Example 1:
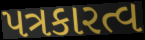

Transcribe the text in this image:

પત્રકારત્વ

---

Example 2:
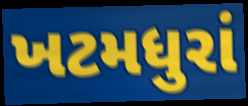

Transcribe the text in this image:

ખટમધુરાં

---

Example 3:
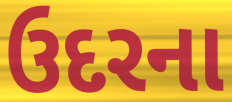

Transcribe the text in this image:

ઉદરના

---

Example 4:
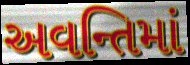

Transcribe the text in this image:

અવન્તિમાં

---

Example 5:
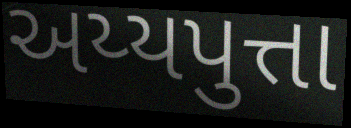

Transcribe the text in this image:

અય્યપુત્તા